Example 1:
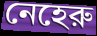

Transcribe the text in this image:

নেহেরু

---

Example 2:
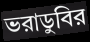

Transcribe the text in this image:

ভরাডুবির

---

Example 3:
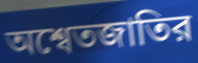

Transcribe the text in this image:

অশ্বেতজাতির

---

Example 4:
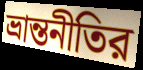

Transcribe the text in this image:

ভ্রান্তনীতির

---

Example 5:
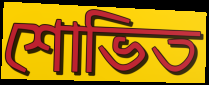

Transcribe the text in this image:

শোভিত